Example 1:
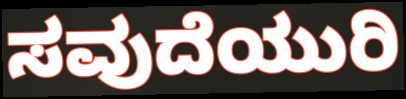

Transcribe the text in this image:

ಸವುದೆಯುರಿ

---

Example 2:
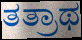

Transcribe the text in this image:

ತತ್ರಾಥ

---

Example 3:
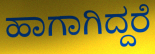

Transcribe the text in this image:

ಹಾಗಾಗಿದ್ದರೆ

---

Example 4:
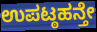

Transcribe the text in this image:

ಉಪಟ್ಠಹನ್ತೇ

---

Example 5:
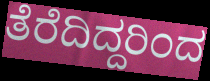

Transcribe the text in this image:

ತೆರೆದಿದ್ದರಿಂದ